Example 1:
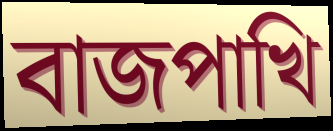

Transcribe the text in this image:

বাজপাখি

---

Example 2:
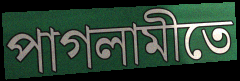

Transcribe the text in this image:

পাগলামীতে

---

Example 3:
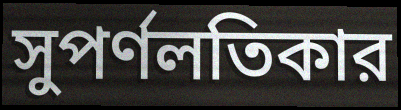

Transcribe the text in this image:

সুপর্ণলতিকার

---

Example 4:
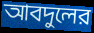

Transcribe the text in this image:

আবদুলের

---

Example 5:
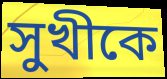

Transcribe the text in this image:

সুখীকে